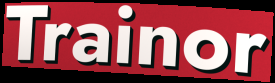
Trainor